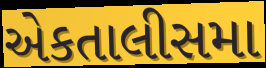
એકતાલીસમા